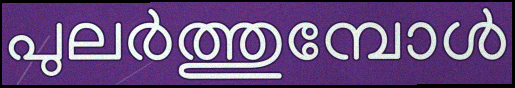
പുലർത്തുമ്പോൾ